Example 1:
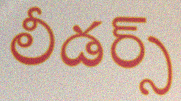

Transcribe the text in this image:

లీడర్స్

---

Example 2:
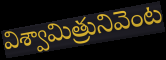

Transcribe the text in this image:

విశ్వామిత్రునివెంట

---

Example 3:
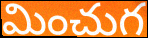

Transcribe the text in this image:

మించుగ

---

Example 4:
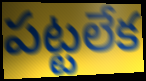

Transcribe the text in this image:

పట్టలేక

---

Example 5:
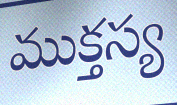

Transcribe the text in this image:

ముక్తస్య